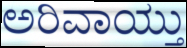
ಅರಿವಾಯ್ತು